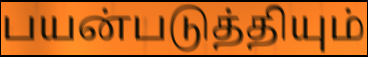
பயன்படுத்தியும்